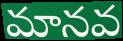
మానవ